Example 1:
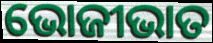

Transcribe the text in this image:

ଭୋଜୀଭାତ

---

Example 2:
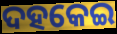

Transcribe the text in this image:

ଦହକେଇ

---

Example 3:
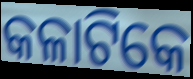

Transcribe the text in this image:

କଳାଟିକେ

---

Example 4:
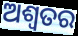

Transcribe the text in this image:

ଅଶ୍ୱତର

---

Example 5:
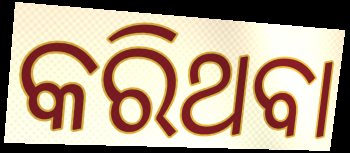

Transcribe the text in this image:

କରିଥବା